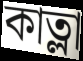
কাত্লা